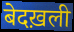
बेदख़ली